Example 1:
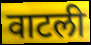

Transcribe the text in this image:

वाटली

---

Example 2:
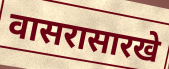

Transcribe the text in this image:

वासरासारखे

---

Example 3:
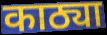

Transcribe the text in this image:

काठ्या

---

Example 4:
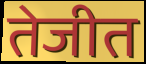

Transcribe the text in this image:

तेजीत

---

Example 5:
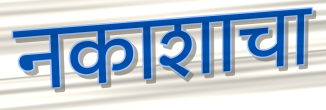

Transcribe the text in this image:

नकाशाचा